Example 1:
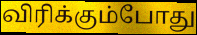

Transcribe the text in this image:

விரிக்கும்போது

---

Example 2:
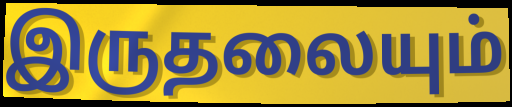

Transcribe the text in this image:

இருதலையும்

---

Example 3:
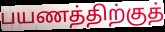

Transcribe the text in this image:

பயணத்திற்குத்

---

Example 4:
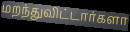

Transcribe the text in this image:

மறந்துவிட்டார்களா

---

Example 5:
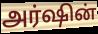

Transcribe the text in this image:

அர்ஷின்